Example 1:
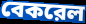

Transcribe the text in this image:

বেকরেল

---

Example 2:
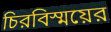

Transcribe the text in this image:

চিরবিস্ময়ের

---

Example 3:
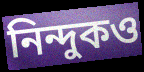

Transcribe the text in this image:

নিন্দুকও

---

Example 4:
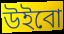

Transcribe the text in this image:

উইবো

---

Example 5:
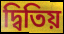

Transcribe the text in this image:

দ্বিতিয়